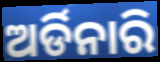
ଅର୍ଡିନାରି